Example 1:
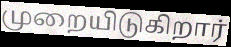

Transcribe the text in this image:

முறையிடுகிறார்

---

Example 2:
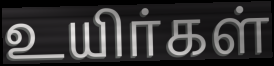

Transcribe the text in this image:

உயிர்கள்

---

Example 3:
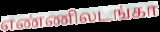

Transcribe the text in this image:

எண்ணிலடங்கா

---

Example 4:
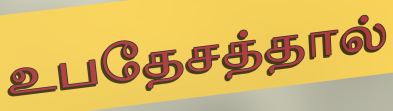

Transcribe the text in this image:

உபதேசத்தால்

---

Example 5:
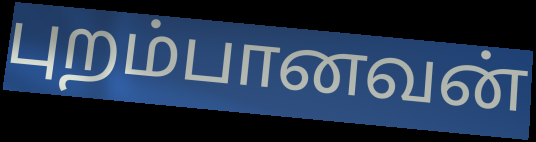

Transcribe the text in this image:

புறம்பானவன்